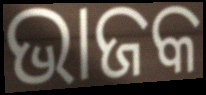
ଭାଜକ